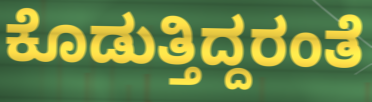
ಕೊಡುತ್ತಿದ್ದರಂತೆ